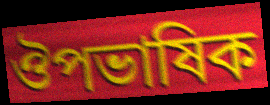
ঔপভাষিক